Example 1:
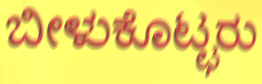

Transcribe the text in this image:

ಬೀಳುಕೊಟ್ಟರು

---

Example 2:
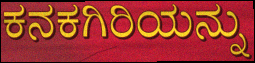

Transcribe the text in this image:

ಕನಕಗಿರಿಯನ್ನು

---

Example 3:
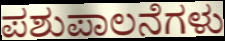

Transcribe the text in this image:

ಪಶುಪಾಲನೆಗಳು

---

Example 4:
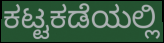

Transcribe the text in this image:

ಕಟ್ಟಕಡೆಯಲ್ಲಿ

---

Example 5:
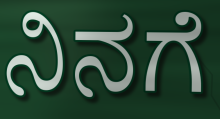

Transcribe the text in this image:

ನಿನಗೆ